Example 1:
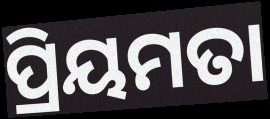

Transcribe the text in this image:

ପ୍ରିୟମତା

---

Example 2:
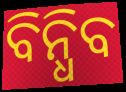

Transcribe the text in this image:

ବିନ୍ଧିବ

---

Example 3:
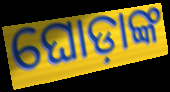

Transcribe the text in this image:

ଘୋଡ଼ାଙ୍କ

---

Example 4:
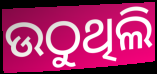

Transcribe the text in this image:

ଉଠୁଥିଲି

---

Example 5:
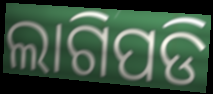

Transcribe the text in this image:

ଲାଗିପଡି